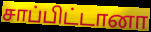
சாப்பிட்டானா